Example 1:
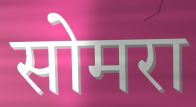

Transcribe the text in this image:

सोमरा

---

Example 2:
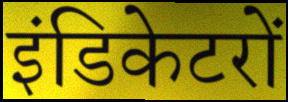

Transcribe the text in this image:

इंडिकेटरों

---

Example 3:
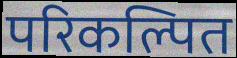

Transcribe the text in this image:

परिकल्पित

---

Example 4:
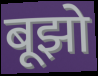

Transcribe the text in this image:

बूझो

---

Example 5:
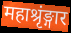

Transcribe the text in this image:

महाश्रृंङ्गार